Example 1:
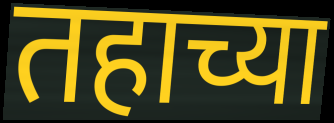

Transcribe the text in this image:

तहाच्या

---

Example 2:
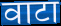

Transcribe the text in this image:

वाटा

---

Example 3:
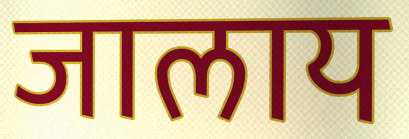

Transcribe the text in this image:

जालाय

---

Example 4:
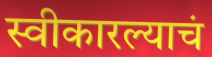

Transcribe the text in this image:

स्वीकारल्याचं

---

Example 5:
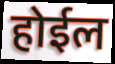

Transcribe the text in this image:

होईल